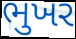
ભુખર